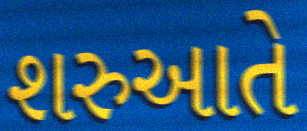
શરુઆતે